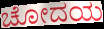
ಚೋದಯ